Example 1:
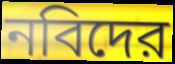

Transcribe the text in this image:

নবিদের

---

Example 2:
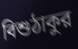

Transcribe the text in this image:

বিশুঠাকুর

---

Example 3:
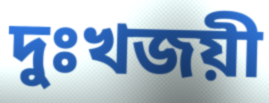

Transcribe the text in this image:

দুঃখজয়ী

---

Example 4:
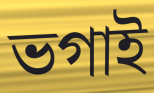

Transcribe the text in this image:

ভগাই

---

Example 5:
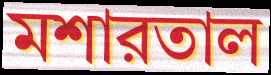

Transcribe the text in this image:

মশারতাল